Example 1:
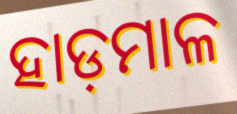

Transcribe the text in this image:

ହାଡ଼ମାଳ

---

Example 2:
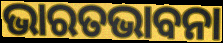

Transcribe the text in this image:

ଭାରତଭାବନା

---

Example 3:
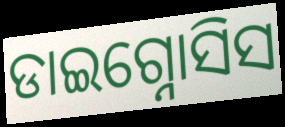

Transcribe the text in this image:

ଡାଇଗ୍ନୋସିସ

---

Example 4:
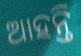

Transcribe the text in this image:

ଆହନ୍ତି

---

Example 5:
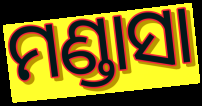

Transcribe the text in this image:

ମଣ୍ଡାସା